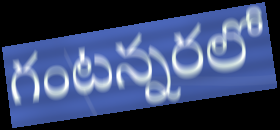
గంటన్నరలో